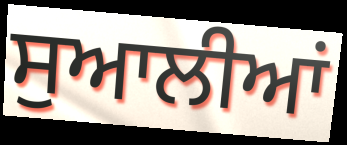
ਸੁਆਲੀਆਂ